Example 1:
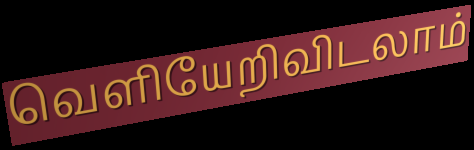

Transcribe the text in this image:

வெளியேறிவிடலாம்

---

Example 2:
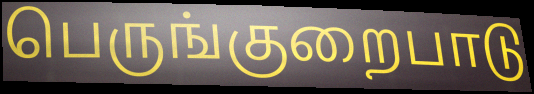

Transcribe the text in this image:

பெருங்குறைபாடு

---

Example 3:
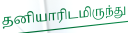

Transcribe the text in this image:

தனியாரிடமிருந்து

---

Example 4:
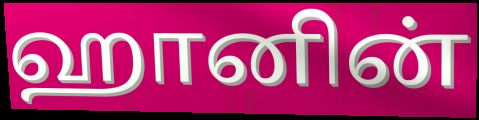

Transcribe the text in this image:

ஹானின்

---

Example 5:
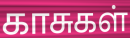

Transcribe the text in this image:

காசுகள்